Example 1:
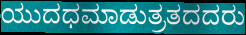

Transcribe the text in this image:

ಯುದಧಮಾಡುತ್ರತದದರು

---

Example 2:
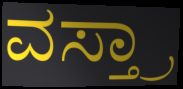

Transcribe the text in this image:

ವಸ್ತ್ರಾ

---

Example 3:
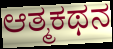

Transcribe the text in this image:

ಆತ್ಮಕಥನ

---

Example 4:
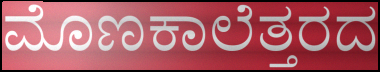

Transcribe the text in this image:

ಮೊಣಕಾಲೆತ್ತರದ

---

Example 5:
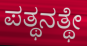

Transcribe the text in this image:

ಪತ್ಥನತ್ಥೇ